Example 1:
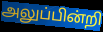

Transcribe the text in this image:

அலுப்பின்றி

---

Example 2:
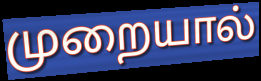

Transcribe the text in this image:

முறையால்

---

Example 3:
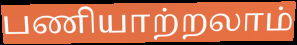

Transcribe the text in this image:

பணியாற்றலாம்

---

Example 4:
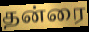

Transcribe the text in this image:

தன்ரை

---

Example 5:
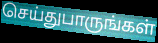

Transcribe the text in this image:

செய்துபாருங்கள்